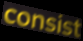
consist